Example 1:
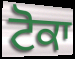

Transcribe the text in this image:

ਟੋਕਾ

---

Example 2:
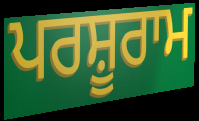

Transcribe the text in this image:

ਪਰਸ਼ੂਰਾਮ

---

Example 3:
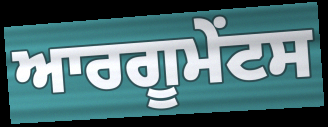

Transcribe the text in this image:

ਆਰਗੂਮੇੰਟਸ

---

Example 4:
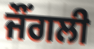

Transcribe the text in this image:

ਜੌਂਗਲੀ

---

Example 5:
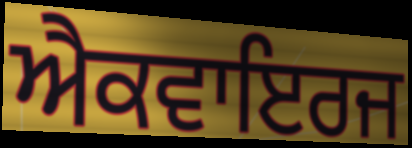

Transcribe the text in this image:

ਐਕਵਾਇਰਜ